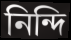
নিন্দি